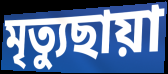
মৃত্যুছায়া